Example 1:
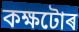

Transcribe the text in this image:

কক্ষটোৰ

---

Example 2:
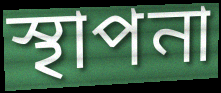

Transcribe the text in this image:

স্থাপনা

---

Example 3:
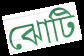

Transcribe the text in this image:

ঝোটি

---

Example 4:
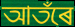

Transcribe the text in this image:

আতঁৰে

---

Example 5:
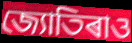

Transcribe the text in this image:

জ্যোতিৰাও